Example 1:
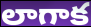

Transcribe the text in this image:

లాగాక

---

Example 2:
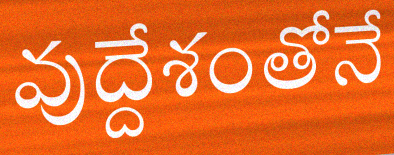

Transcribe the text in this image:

వుద్దేశంతోనే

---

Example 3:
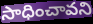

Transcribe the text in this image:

సాధించావని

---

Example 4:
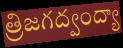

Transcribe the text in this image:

త్రిజగద్వంద్యా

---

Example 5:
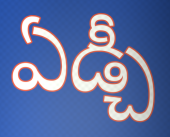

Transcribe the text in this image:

ఏడ్చీ